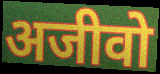
अजीवो